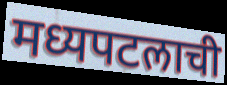
मध्यपटलाची